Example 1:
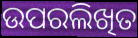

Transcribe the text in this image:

ଉପରଲିଖିତ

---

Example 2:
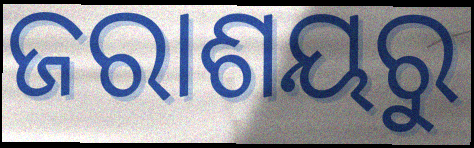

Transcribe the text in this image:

ଜରାଶୟରୁ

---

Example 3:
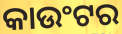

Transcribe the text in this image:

କାଉଂଟର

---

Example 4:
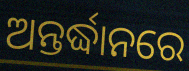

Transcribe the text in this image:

ଅନ୍ତର୍ଦ୍ଧାନରେ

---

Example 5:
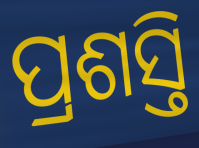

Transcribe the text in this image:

ପ୍ରଶସ୍ତି